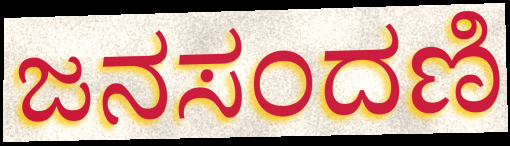
ಜನಸಂದಣಿ